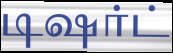
டிஷர்ட்